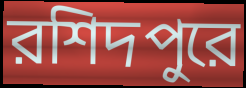
রশিদপুরে